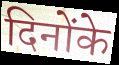
दिनोंके